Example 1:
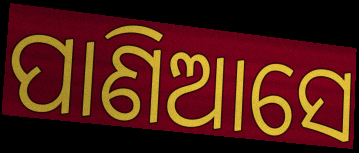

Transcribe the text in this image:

ପାଣିଆସେ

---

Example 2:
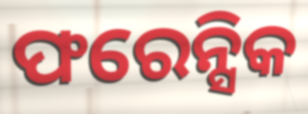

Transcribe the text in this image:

ଫରେନ୍ସିକ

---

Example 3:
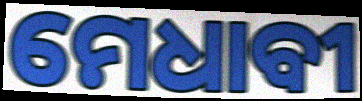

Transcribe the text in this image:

ମେଧାବୀ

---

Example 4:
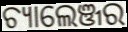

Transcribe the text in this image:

ଚ୍ୟାଲେଞ୍ଜର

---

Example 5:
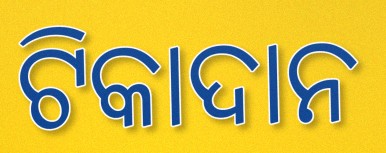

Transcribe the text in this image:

ଟିକାଦାନ